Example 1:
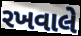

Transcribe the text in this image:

રખવાલે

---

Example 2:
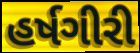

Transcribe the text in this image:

હર્ષગીરી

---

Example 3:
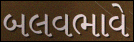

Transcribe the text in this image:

બલવભાવે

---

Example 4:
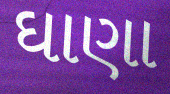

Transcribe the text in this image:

ઘાણા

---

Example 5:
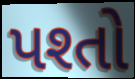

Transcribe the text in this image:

પશ્તો